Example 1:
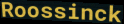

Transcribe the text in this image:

Roossinck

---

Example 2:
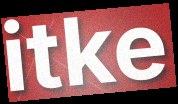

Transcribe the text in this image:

itke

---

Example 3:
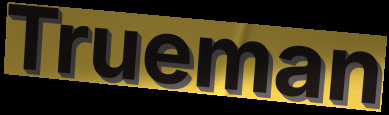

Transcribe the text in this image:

Trueman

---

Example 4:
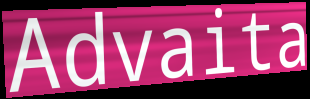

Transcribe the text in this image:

Advaita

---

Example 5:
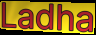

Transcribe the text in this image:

Ladha